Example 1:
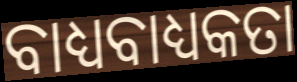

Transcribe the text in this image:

ବାଧ୍ୟବାଧ୍ୟକତା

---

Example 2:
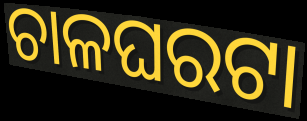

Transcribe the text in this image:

ଚାଳଘରଟା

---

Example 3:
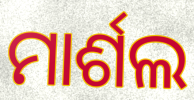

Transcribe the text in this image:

ମାର୍ଶଲ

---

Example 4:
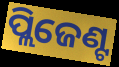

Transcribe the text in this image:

ପ୍ଲିଜେଣ୍ଟ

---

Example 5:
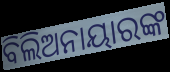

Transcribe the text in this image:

ବିଲିଅନାୟାରଙ୍କ